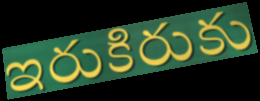
ఇరుకిరుకు